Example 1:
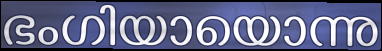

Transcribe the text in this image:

ഭംഗിയായൊന്നു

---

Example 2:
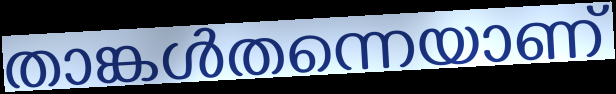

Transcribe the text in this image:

താങ്കൾതന്നെയാണ്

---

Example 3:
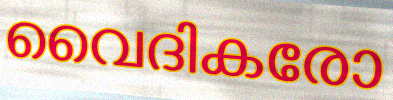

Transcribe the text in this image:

വൈദികരോ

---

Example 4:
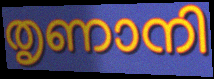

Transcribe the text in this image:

തൃണാനി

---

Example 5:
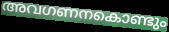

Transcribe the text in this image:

അവഗണനകൊണ്ടും